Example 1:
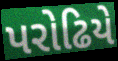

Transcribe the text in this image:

પરોઢિયે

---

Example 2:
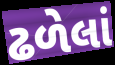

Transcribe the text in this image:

ઢળેલાં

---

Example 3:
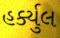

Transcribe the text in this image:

હર્ક્યુલ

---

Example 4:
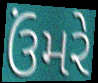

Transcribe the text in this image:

ઉંમરે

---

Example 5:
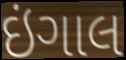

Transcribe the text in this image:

ઇંગાલ